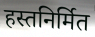
हस्तनिर्मित